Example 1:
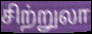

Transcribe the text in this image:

சிற்றுலா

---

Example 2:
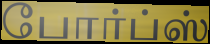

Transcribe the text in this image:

போர்ப்ஸ்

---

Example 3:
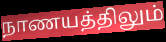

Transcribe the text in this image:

நாணயத்திலும்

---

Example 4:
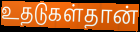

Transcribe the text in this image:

உதடுகள்தான்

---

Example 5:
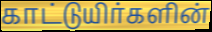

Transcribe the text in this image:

காட்டுயிர்களின்